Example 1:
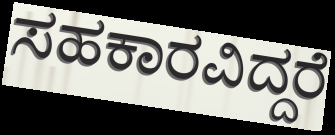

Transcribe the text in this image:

ಸಹಕಾರವಿದ್ದರೆ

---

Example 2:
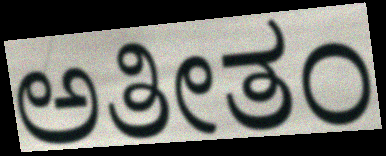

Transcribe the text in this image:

ಅತೀತಂ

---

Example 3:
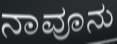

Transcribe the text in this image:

ನಾವೂನು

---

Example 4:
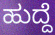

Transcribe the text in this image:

ಹುದ್ದೆ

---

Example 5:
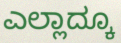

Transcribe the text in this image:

ಎಲ್ಲಾದ್ಕೂ